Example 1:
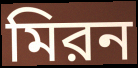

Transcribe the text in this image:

মিরন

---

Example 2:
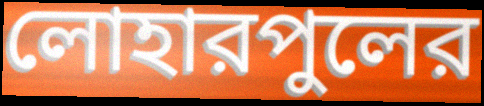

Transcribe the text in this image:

লোহারপুলের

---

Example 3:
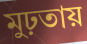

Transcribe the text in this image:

মুঢ়তায়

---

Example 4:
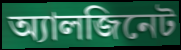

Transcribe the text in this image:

অ্যালজিনেট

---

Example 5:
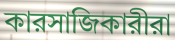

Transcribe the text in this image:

কারসাজিকারীরা